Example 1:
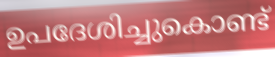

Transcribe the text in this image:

ഉപദേശിച്ചുകൊണ്ട്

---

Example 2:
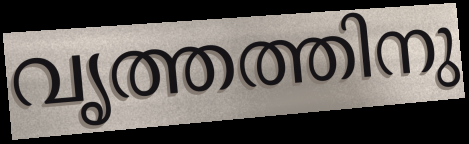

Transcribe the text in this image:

വൃത്തത്തിനു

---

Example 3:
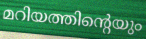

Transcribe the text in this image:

മറിയത്തിന്റെയും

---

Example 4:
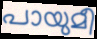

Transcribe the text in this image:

പായുമീ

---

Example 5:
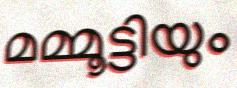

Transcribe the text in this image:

മമ്മൂട്ടിയും